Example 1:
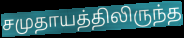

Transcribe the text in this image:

சமுதாயத்திலிருந்த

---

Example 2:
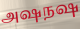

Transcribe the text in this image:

அஷநஷ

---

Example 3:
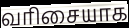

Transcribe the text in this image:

வரிசையாக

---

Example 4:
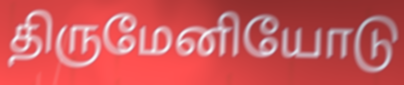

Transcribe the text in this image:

திருமேனியோடு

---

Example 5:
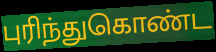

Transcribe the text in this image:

புரிந்துகொண்ட